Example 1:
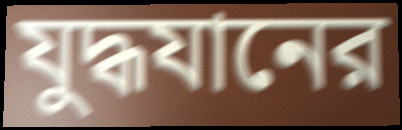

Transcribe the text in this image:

যুদ্ধযানের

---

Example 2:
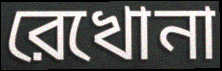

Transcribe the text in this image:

রেখোনা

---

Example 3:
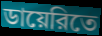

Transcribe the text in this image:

ডায়েরিতে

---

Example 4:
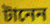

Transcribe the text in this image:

টানেন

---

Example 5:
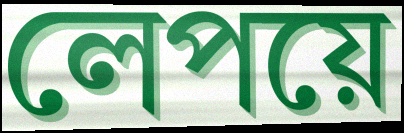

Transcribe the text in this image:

লেপয়ে